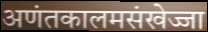
अणंतकालमसंखेज्जा